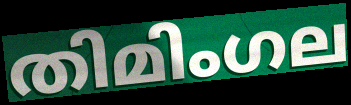
തിമിംഗല